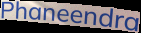
Phaneendra